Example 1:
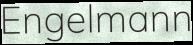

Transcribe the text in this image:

Engelmann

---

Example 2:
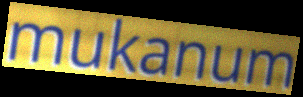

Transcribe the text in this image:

mukanum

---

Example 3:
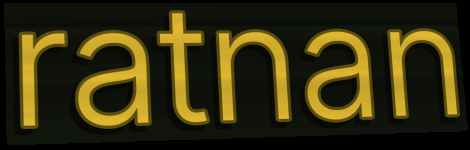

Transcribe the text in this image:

ratnan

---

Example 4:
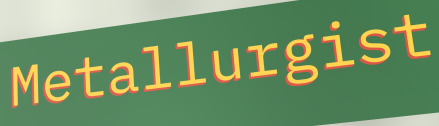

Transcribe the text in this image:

Metallurgist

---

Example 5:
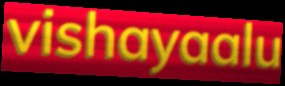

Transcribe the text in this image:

vishayaalu